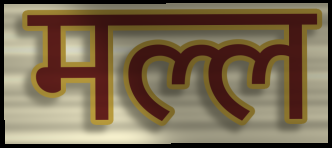
मल्ल